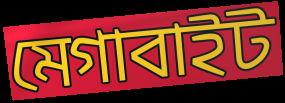
মেগাবাইট